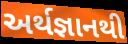
અર્થજ્ઞાનથી